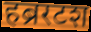
हब्ररटश